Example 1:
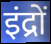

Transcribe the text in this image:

इंद्रों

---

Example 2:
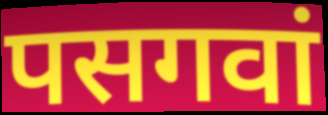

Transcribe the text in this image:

पसगवां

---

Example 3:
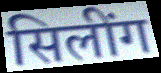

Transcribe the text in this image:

सिलींग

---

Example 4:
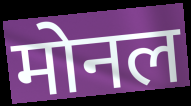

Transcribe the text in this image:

मोनल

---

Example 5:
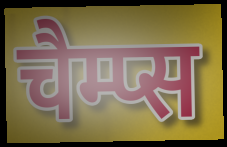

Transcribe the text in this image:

चैम्प्स